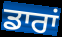
ਡਾਰਾਂ